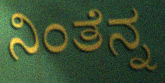
ನಿಂತೆನ್ನ